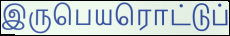
இருபெயரொட்டுப்